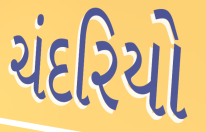
ચંદરિયો